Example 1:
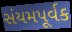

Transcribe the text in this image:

સંયમપૂર્વક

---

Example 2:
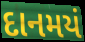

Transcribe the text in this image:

દાનમયં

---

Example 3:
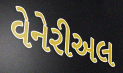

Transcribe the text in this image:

વેનેરીઅલ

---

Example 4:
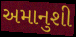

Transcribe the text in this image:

અમાનુશી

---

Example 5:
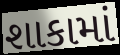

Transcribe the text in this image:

શાકામાં